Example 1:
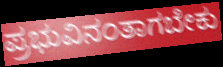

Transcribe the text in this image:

ಪ್ರಭುವಿನಂತಾಗಬೇಕು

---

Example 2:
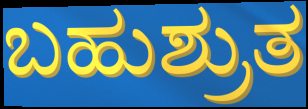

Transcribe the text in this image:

ಬಹುಶ್ರುತ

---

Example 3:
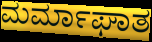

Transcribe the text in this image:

ಮರ್ಮಾಘಾತ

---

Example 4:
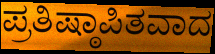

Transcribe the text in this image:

ಪ್ರತಿಷ್ಠಾಪಿತವಾದ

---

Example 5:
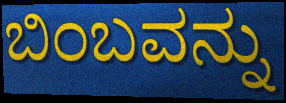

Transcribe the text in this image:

ಬಿಂಬವನ್ನು